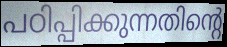
പഠിപ്പിക്കുന്നതിന്റെ